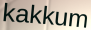
kakkum